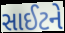
સાઈટને